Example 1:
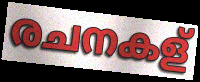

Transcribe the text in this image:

രചനകള്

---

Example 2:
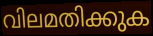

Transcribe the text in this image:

വിലമതിക്കുക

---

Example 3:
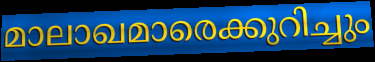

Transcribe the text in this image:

മാലാഖമാരെക്കുറിച്ചും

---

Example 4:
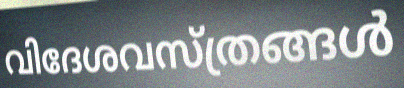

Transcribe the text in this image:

വിദേശവസ്ത്രങ്ങൾ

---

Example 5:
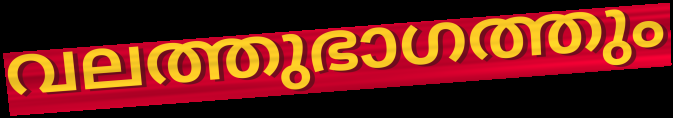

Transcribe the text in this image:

വലത്തുഭാഗത്തും